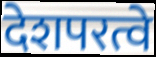
देशपरत्वे